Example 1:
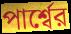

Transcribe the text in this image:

পার্শ্বের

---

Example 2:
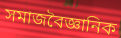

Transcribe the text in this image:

সমাজবৈজ্ঞানিক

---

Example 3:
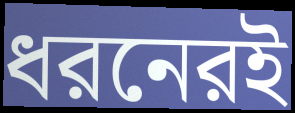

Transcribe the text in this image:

ধরনেরই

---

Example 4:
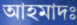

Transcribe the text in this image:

আহমাদঃ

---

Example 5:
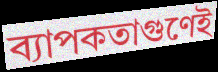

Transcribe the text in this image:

ব্যাপকতাগুণেই